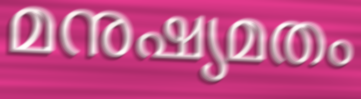
മനുഷ്യമതം